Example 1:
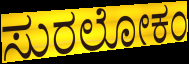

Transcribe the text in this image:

ಸುರಲೋಕಂ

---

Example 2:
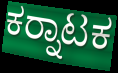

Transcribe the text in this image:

ಕರ‍್ನಾಟಕ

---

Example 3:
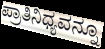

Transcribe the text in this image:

ಪ್ರಾತಿನಿಧ್ಯವನ್ನೂ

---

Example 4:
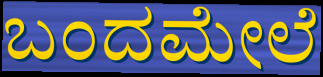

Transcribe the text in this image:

ಬಂದಮೇಲೆ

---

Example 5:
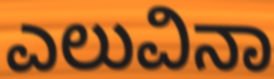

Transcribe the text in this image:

ಎಲುವಿನಾ